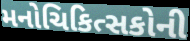
મનોચિકિત્સકોની